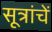
सूत्रांचें